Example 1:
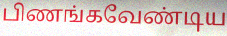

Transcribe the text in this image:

பிணங்கவேண்டிய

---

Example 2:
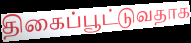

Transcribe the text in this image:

திகைப்பூட்டுவதாக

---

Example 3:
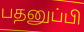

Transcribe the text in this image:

பதனுப்பி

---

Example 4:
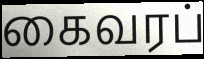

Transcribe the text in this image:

கைவரப்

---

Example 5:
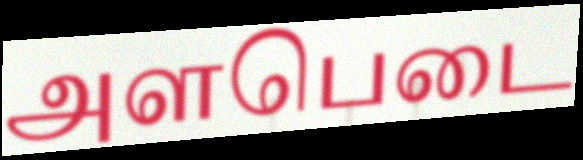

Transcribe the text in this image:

அளபெடை